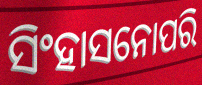
ସିଂହାସନୋପରି